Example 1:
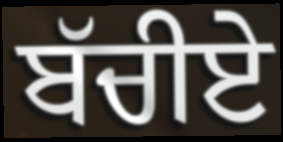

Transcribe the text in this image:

ਬੱਚੀਏ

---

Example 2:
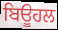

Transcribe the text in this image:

ਬਿਊਹਲ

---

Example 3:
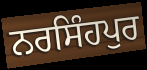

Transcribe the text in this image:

ਨਰਸਿੰਹਪੁਰ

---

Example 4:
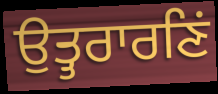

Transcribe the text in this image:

ਉਤ੍ਤਰਾਰਣਿਂ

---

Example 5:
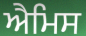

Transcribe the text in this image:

ਐਮਿਸ